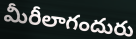
మీరీలాగందురు